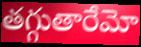
తగ్గుతారేమో